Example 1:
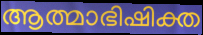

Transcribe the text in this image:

ആത്മാഭിഷിക്ത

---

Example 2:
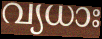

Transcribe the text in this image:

വ്യധാഃ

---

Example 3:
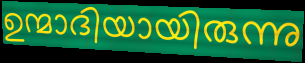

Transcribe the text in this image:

ഉന്മാദിയായിരുന്നു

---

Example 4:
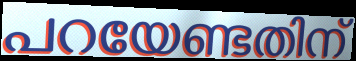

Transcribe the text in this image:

പറയേണ്ടതിന്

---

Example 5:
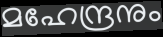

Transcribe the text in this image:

മഹേന്ദ്രനും